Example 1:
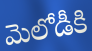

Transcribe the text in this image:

మెలోడీకి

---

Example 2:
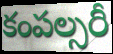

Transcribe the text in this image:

కంపల్సరీ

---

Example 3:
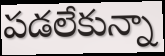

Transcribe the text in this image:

పడలేకున్నా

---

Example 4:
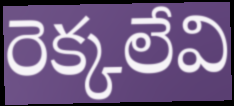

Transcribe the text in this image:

రెక్కలేవి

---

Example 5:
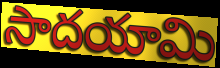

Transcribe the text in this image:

సాదయామి